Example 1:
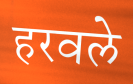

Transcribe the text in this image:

हरवले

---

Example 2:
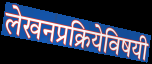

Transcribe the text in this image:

लेखनप्रक्रियेविषयी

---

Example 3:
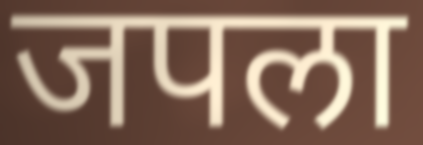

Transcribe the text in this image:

जपला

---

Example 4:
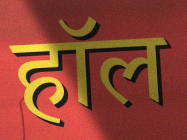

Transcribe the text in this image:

हॉल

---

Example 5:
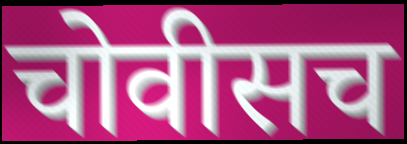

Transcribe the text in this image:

चोवीसच